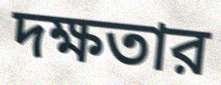
দক্ষতার